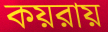
কয়রায়